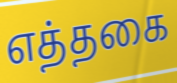
எத்தகை